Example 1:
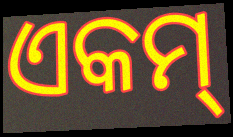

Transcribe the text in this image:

ଏକମ୍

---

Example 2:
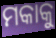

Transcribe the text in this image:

ମକାକୁ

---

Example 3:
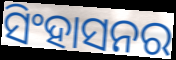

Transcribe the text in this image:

ସିଂହାସନର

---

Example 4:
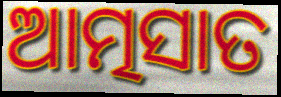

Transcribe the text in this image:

ଆତ୍ମସାତ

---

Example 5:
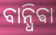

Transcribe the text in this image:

ବାନ୍ଧିଵା